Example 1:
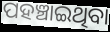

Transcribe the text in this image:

ପହଞ୍ଚାଇଥିବା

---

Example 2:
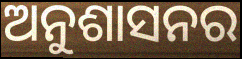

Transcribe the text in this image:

ଅନୁଶାସନର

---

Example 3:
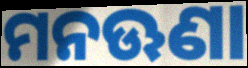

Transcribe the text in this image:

ମନଊଣା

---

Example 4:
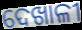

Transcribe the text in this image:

ଦେଖାଳୀ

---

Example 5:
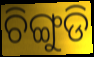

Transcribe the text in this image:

ଚିଙ୍ଗୁଡି